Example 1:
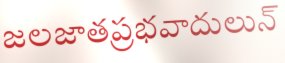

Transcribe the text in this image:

జలజాతప్రభవాదులున్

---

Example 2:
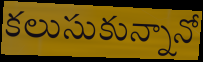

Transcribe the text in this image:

కలుసుకున్నానో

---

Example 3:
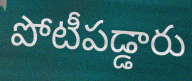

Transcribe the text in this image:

పోటీపడ్డారు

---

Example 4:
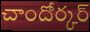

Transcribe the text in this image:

చాందోర్కర్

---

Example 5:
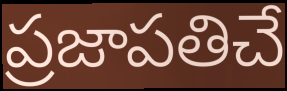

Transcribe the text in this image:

ప్రజాపతిచే